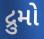
દ્રુમો